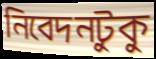
নিবেদনটুকু